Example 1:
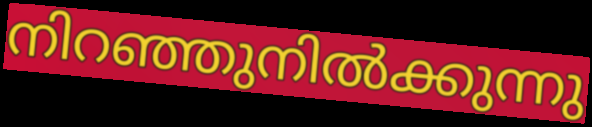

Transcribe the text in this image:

നിറഞ്ഞുനിൽക്കുന്നു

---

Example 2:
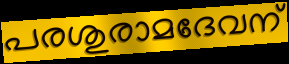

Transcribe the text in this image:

പരശുരാമദേവന്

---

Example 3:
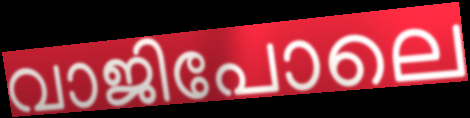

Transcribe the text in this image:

വാജിപോലെ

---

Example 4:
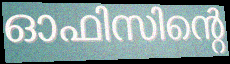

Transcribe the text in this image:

ഓഫിസിന്റെ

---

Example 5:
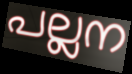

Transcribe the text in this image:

പല്ലന